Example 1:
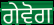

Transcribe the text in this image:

ਗੇਵੋਗ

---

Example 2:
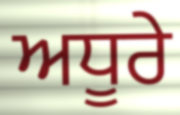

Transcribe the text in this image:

ਅਧੂਰੇ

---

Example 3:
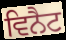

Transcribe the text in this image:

ਵਿਨੈਟ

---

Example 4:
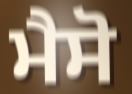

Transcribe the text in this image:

ਮੈਸੋ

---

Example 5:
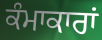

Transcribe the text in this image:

ਕੰਮਾਕਾਰਾਂ